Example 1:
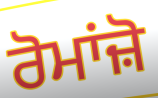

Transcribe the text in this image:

ਰੋਮਾਂਜ਼ੋ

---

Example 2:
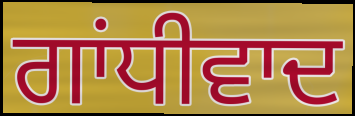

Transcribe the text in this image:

ਗਾਂਧੀਵਾਦ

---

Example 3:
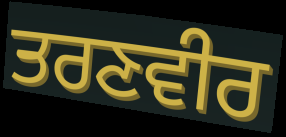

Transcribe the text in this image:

ਤਰਣਵੀਰ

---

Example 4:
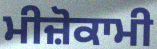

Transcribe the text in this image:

ਮੀਜ਼ੋਕਾਮੀ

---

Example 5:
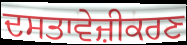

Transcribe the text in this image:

ਦਸਤਾਵੇਜ਼ੀਕਰਣ